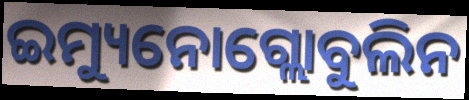
ଇମ୍ୟୁନୋଗ୍ଲୋବୁଲିନ